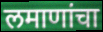
लमाणांचा